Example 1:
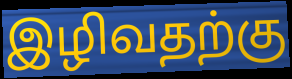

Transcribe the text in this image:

இழிவதற்கு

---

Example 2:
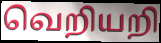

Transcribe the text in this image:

வெறியறி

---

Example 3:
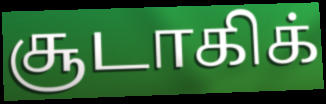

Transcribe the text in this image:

சூடாகிக்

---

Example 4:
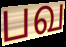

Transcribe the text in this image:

பவ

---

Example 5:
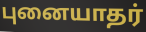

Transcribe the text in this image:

புனையாதர்